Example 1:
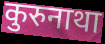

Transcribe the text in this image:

कुरुनाथा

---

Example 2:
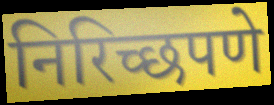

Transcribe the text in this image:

निरिच्छपणे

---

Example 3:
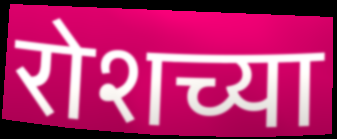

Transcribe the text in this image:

रोशच्या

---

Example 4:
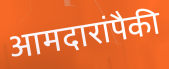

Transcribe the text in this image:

आमदारांपैकी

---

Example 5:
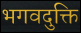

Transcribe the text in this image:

भगवदुक्ति